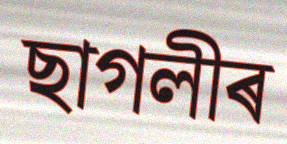
ছাগলীৰ